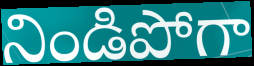
నిండిపోగా